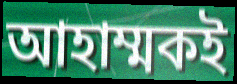
আহাম্মকই